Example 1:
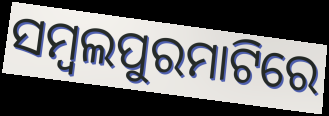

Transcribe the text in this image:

ସମ୍ବଲପୁରମାଟିରେ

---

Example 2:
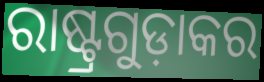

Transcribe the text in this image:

ରାଷ୍ଟ୍ରଗୁଡ଼ାକର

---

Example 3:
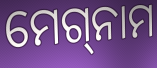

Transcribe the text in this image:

ମେଗ୍‌ନାମ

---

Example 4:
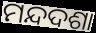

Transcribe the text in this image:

ମନ୍ଦଦଶା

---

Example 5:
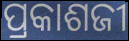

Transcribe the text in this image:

ପ୍ରକାଶଜୀ